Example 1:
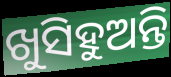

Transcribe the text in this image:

ଖୁସିହୁଅନ୍ତି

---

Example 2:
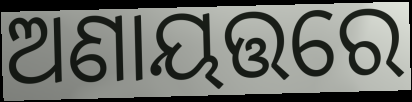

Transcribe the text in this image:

ଅଣାୟତ୍ତରେ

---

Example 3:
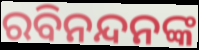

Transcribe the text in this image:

ରବିନନ୍ଦନଙ୍କ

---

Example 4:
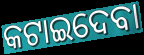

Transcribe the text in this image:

କଟାଇଦେବା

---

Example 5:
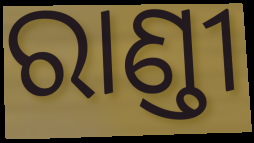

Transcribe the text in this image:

ରାଣ୍ଡୀ